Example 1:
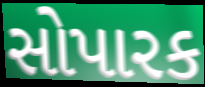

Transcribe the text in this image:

સોપારક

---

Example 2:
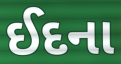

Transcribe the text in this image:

ઈદના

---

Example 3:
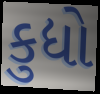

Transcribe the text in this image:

કુદ્યો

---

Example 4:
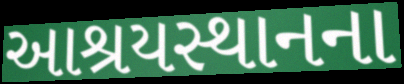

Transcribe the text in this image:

આશ્રયસ્થાનના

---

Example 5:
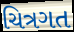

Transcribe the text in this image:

ચિત્રગત